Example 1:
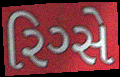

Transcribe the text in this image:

રિગ્સે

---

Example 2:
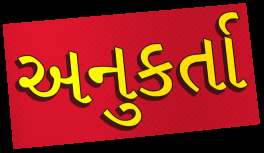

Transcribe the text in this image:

અનુકર્તા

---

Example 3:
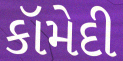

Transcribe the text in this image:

કૉમેદી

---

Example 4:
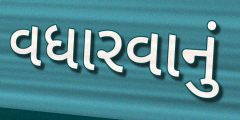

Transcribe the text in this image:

વધારવાનું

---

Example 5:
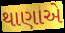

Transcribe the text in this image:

થાણાએ